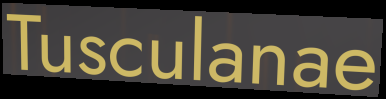
Tusculanae